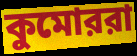
কুমোররা